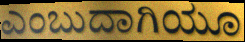
ಎಂಬುದಾಗಿಯೂ